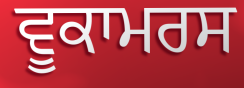
ਵੂਕਾਮਰਸ